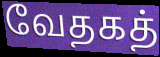
வேதகத்